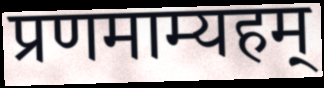
प्रणमाम्यहम्